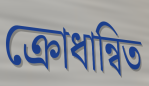
ক্ৰোধান্বিত